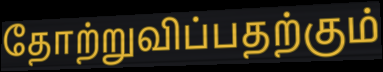
தோற்றுவிப்பதற்கும்